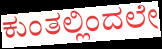
ಕುಂತಲ್ಲಿಂದಲೇ